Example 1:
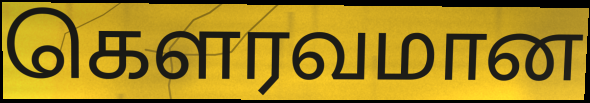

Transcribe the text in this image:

கெளரவமான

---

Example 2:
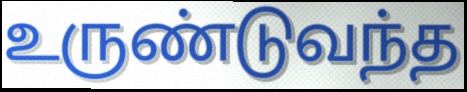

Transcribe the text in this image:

உருண்டுவந்த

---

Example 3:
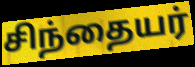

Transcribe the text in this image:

சிந்தையர்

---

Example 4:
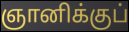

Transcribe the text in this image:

ஞானிக்குப்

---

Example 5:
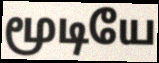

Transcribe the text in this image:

மூடியே